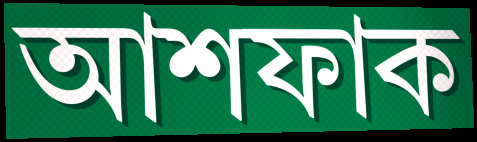
আশফাক